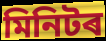
মিনিটৰ